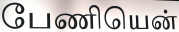
பேணியென்